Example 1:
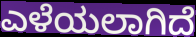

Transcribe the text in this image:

ಎಳೆಯಲಾಗಿದೆ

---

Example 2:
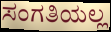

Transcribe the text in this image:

ಸಂಗತಿಯಲ್ಲ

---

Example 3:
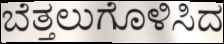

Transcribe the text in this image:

ಬೆತ್ತಲುಗೊಳಿಸಿದ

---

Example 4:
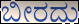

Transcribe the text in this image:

ಬೀರದು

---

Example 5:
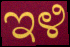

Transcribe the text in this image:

ಇಳಿ